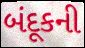
બંદૂકની